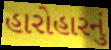
હારોહારનું